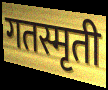
गतस्मृती